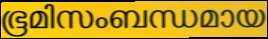
ഭൂമിസംബന്ധമായ